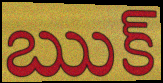
ఋక్